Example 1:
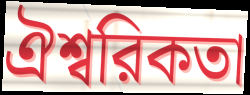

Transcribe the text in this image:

ঐশ্বরিকতা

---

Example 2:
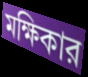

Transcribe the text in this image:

মক্ষিকার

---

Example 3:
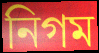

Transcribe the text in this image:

নিগম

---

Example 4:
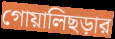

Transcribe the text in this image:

গোয়ালিছড়ার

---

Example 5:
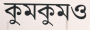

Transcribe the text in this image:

কুমকুমও